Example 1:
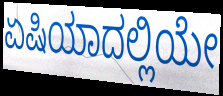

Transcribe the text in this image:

ಏಷಿಯಾದಲ್ಲಿಯೇ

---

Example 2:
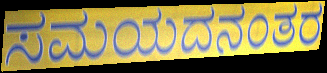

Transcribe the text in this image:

ಸಮಯದನಂತರ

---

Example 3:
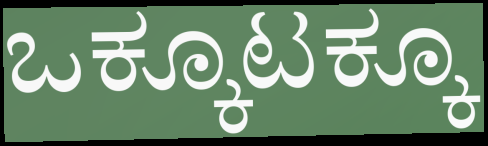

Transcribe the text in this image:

ಒಕ್ಕೂಟಕ್ಕೂ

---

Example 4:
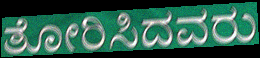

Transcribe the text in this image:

ತೋರಿಸಿದವರು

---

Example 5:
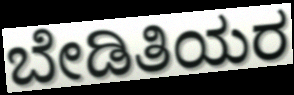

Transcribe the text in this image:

ಬೇಡಿತಿಯರ